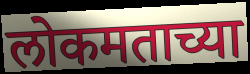
लोकमताच्या